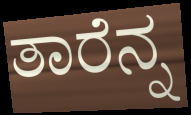
ತಾರೆನ್ನ